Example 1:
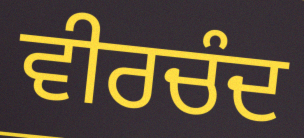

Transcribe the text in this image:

ਵੀਰਚੰਦ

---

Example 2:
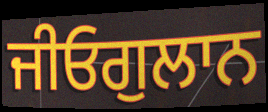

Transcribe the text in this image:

ਜੀਓਗੁਲਾਨ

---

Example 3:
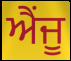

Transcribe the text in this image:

ਐਂਜੂ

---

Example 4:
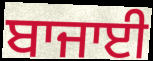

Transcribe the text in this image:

ਬਾਜਾਈ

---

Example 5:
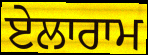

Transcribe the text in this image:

ਏਲਾਰਾਮ